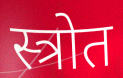
स्त्रोत